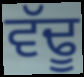
ਵੱਢੂ